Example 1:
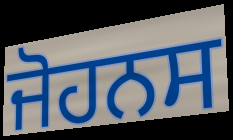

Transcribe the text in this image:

ਜੋਹਨਸ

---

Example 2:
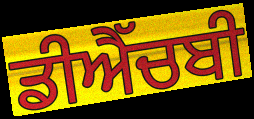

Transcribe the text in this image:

ਡੀਐੱਚਬੀ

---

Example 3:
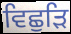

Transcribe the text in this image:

ਵਿਛੁੜਿ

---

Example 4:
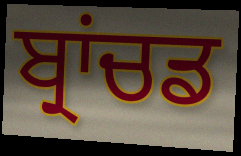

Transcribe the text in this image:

ਬ੍ਰਾਂਚਡ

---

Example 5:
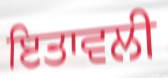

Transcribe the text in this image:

ਇਤਾਵਲੀ